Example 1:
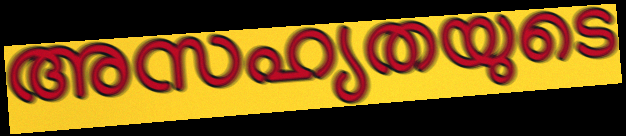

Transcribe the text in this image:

അസഹ്യതയുടെ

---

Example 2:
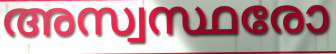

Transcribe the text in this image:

അസ്വസ്ഥരോ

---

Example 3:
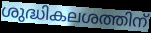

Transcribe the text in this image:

ശുദ്ധികലശത്തിന്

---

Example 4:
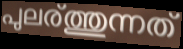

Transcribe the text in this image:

പുലര്ത്തുന്നത്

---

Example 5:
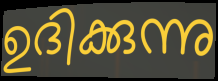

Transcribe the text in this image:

ഉദിക്കുന്നു